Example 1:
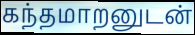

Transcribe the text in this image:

கந்தமாறனுடன்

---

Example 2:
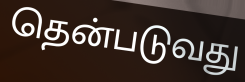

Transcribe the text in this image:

தென்படுவது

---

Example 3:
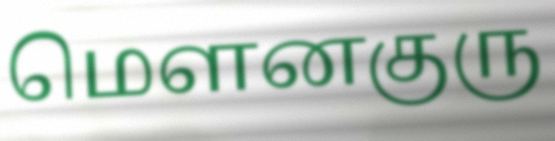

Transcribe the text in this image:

மௌனகுரு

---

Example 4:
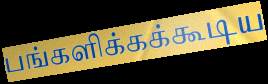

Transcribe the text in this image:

பங்களிக்கக்கூடிய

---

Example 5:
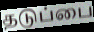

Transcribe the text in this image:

தடுப்பை